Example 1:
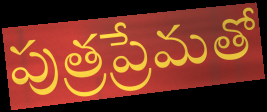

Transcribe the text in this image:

పుత్రప్రేమతో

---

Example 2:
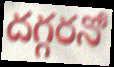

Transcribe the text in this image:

దగ్గరనో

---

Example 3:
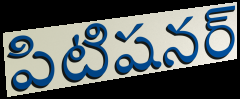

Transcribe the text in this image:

పిటిషనర్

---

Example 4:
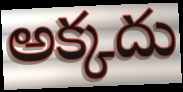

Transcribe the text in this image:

అక్కదు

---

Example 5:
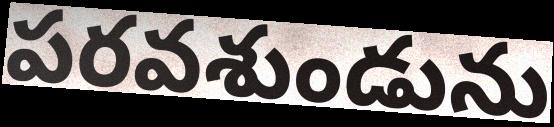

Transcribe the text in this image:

పరవశుండును